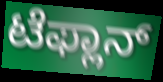
ಟೆಫ್ಲಾನ್